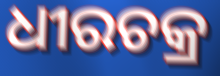
ଧୀରଚକ୍ର